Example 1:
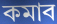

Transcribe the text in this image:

কমাব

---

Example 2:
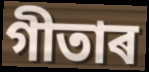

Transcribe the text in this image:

গীতাৰ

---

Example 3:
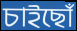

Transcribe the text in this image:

চাইছোঁ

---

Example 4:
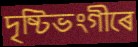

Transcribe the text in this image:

দৃষ্টিভংগীৰে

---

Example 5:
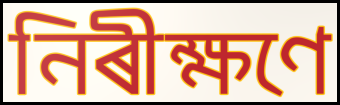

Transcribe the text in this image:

নিৰীক্ষণে